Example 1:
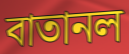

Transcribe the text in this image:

বাতানল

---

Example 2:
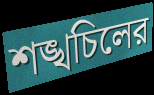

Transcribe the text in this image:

শঙ্খচিলের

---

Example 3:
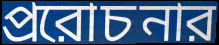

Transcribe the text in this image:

প্ররোচনার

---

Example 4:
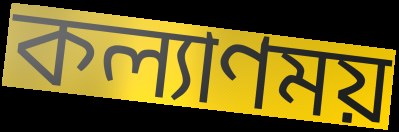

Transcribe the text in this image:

কল্যাণময়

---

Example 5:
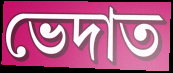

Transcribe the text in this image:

ভেদাত